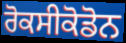
ਰੋਕਸੀਕੋਡੋਨ